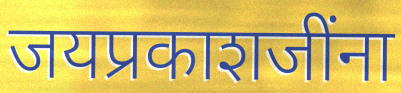
जयप्रकाशजींना